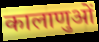
कालाणुओं